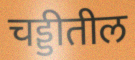
चड्डीतील